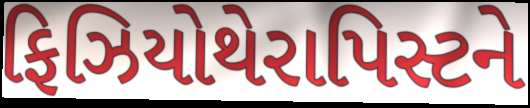
ફિઝિયોથેરાપિસ્ટને